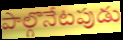
పాల్గొనేటపుడు